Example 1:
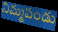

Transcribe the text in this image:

నిమ్మపండు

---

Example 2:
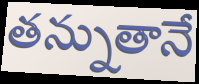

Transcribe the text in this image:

తన్నుతానే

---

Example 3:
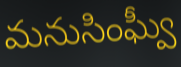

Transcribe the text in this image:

మనుసింఘ్వీ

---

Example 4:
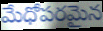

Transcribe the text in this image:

మేధోపరమైన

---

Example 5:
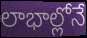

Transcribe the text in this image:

లాభాల్లోనే